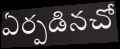
ఏర్పడినచో